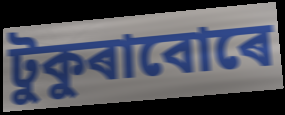
টুকুৰাবোৰে